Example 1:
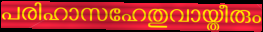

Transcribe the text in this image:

പരിഹാസഹേതുവായ്തീരും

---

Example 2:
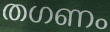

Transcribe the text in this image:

തഗണം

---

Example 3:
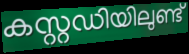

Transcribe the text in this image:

കസ്റ്റഡിയിലുണ്ട്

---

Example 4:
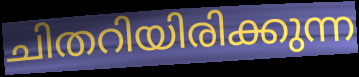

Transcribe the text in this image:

ചിതറിയിരിക്കുന്ന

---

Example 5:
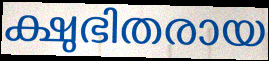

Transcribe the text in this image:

ക്ഷുഭിതരായ